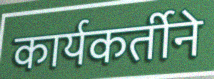
कार्यकर्तीने